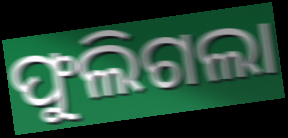
ଫୁଲିଗଲା